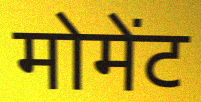
मोमेंट